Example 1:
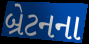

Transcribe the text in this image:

બ્રેટનના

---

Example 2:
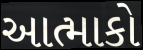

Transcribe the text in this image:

આત્માકો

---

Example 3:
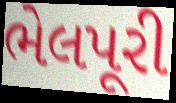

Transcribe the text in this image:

ભેલપૂરી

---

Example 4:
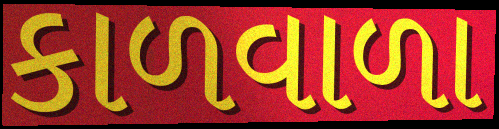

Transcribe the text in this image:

કાળવાળા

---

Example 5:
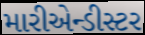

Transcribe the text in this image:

મારીએન્ડીસ્ટર